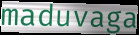
maduvaga